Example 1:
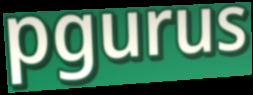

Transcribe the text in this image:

pgurus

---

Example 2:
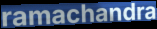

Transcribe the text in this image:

ramachandra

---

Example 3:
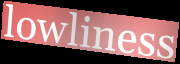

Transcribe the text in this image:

lowliness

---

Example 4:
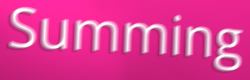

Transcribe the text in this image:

Summing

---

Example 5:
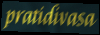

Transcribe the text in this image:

pratidivasa